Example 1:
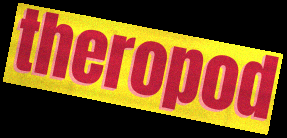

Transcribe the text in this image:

theropod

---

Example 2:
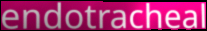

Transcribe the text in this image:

endotracheal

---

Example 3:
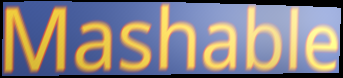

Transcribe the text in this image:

Mashable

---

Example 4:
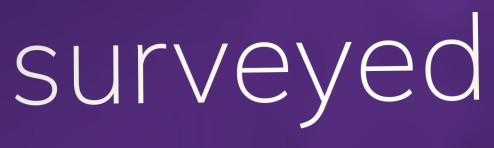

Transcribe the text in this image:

surveyed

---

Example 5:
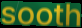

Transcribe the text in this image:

sooth